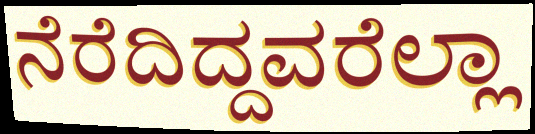
ನೆರೆದಿದ್ದವರೆಲ್ಲಾ